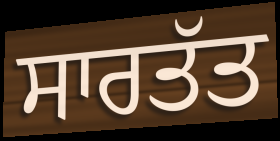
ਸਾਰਤੱਤ